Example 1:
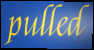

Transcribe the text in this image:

pulled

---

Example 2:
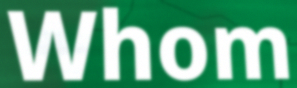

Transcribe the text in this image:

Whom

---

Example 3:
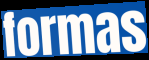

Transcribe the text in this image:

formas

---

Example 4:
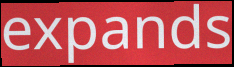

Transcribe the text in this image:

expands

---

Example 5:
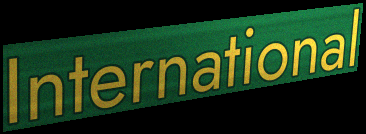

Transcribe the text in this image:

International